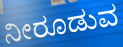
ನೀರೂಡುವ